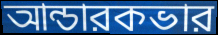
আন্ডারকভার